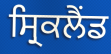
ਸ੍ਰਿਕਲੈਂਡ